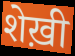
शेख़ी